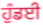
ਹੁੰਡਈ